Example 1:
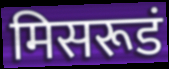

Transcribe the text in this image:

मिसरूडं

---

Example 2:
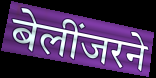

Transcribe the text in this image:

बेलींजरने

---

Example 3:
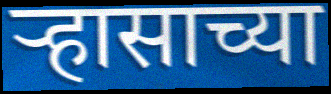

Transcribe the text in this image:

ऱ्हासाच्या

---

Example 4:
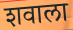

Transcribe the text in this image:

शवाला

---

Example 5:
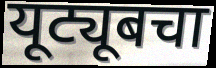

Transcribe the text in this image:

यूट्यूबचा